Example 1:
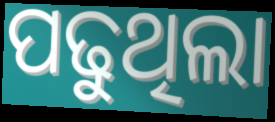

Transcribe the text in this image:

ପଢୁଥିଲା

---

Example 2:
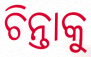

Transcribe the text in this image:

ଚିନ୍ତାକୁ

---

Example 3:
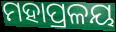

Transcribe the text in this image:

ମହାପ୍ରଳୟ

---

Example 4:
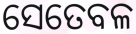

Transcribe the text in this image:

ସେତେବଳ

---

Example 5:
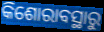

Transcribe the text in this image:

କିଶୋରାବସ୍ଥାରୁ